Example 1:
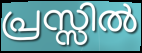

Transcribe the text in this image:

പ്രസ്സിൽ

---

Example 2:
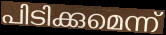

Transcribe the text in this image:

പിടിക്കുമെന്ന്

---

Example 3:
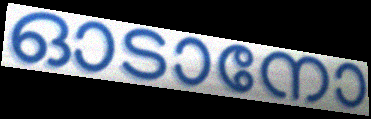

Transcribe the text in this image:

ഓടാനോ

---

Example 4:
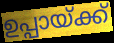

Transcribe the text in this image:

ഉപ്പായ്ക്ക്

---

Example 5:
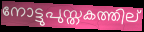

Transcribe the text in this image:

നോട്ടുപുസ്തകത്തില്